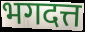
भगदत्त